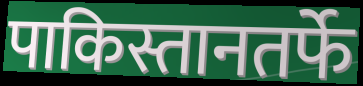
पाकिस्तानतर्फे